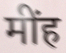
मींह